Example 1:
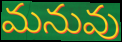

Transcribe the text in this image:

మనువు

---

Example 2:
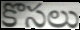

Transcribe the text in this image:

కొసలు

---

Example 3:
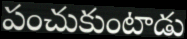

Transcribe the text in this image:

పంచుకుంటాడు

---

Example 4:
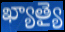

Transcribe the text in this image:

ఖ్యాత్యై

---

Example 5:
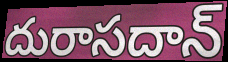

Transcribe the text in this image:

దురాసదాన్